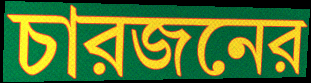
চারজনের